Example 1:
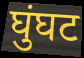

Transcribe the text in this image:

घुंघट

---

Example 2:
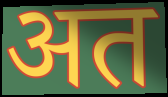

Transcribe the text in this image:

अत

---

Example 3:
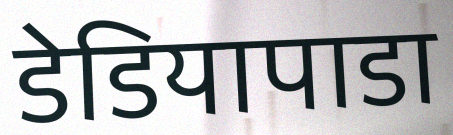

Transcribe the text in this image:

डेडियापाडा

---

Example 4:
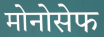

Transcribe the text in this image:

मोनोसेफ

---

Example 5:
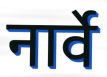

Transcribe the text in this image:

नार्वे